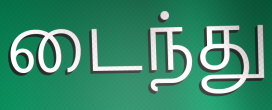
டைந்து